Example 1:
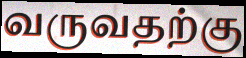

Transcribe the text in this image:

வருவதற்கு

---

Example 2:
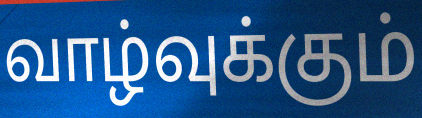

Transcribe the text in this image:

வாழ்வுக்கும்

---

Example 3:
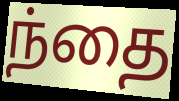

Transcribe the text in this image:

ந்தை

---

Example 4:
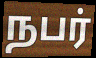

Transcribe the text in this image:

நபர்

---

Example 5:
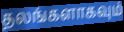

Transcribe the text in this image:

தலங்களாகவும்